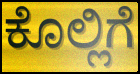
ಕೊಲ್ಲಿಗೆ